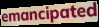
emancipated